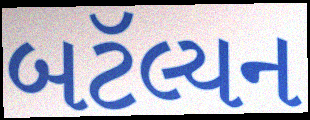
બટૅલ્યન